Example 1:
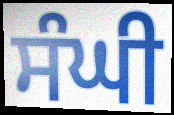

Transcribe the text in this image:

ਸੰਘੀ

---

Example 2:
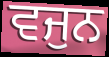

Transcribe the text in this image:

ਵਜੁਨ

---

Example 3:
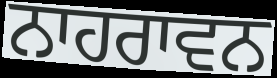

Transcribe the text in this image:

ਨਾਹਰਾਵਨ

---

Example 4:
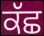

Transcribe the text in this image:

ਕੱਛ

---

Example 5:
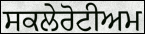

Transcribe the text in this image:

ਸਕਲੇਰੋਟੀਅਮ